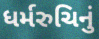
ધર્મરુચિનું